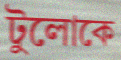
টুলোকে